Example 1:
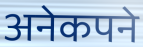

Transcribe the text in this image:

अनेकपने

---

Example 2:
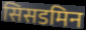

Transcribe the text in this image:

सिसडमिन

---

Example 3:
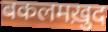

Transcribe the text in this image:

बकलमख़ुद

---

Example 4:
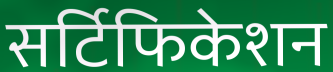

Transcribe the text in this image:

सर्टिफिकेशन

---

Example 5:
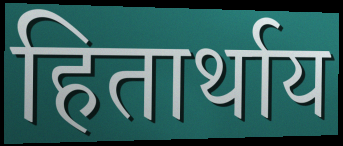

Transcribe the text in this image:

हितार्थाय